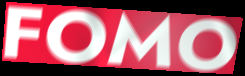
FOMO